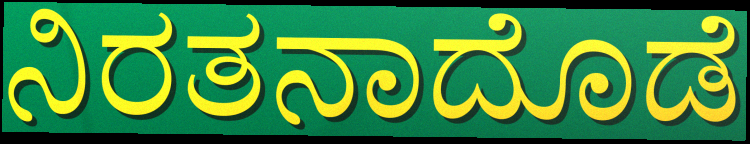
ನಿರತನಾದೊಡೆ